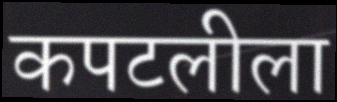
कपटलीला